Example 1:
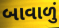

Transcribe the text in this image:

બાવાળું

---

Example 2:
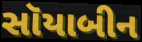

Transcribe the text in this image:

સૉયાબીન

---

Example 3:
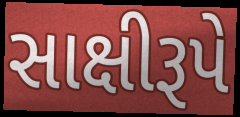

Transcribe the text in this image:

સાક્ષીરૂપે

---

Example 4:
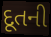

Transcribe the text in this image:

દૂતની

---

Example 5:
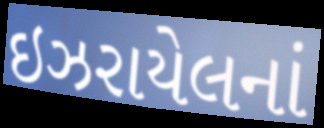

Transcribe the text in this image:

ઇઝરાયેલનાં